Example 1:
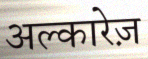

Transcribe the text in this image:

अल्कारेज़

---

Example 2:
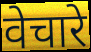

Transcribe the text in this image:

वेचारे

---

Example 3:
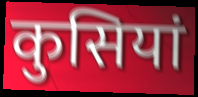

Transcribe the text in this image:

कुसियां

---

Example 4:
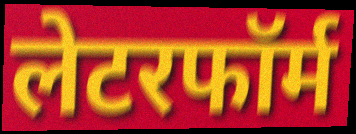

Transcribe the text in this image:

लेटरफॉर्म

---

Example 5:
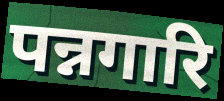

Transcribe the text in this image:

पन्नगारि